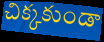
చిక్కకుండా